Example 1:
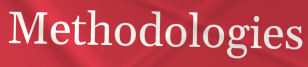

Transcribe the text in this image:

Methodologies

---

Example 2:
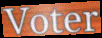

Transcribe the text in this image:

Voter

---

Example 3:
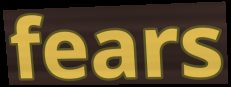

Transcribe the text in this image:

fears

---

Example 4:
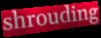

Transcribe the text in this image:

shrouding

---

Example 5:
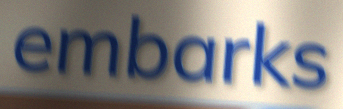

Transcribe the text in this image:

embarks